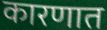
कारणात